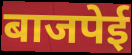
बाजपेई